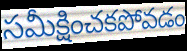
సమీక్షించకపోవడం